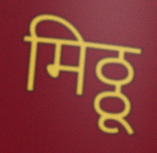
मिठ्ठू